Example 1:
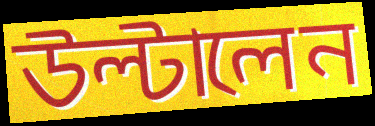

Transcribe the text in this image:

উল্টালেন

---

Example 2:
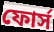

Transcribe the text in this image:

ফোর্স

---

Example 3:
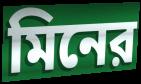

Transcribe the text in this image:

মিনের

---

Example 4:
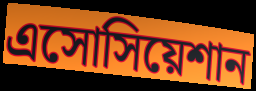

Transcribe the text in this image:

এসোসিয়েশান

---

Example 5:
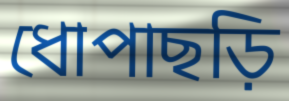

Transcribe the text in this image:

ধোপাছড়ি